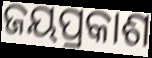
ଜୟପ୍ରକାଶ